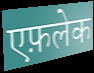
एफ़लेक